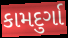
કામદુર્ગા